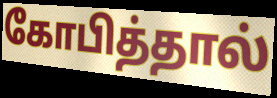
கோபித்தால்